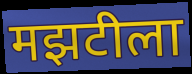
मझटीला